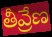
తీవ్రేణ